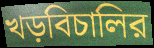
খড়বিচালির